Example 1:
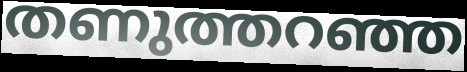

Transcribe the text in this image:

തണുത്തറഞ്ഞ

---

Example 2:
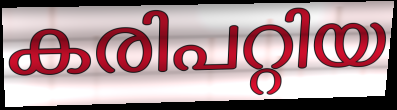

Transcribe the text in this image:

കരിപറ്റിയ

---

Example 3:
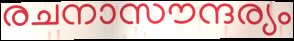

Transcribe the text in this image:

രചനാസൗന്ദര്യം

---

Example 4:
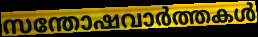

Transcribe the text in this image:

സന്തോഷവാർത്തകൾ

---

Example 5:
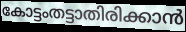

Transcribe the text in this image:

കോട്ടംതട്ടാതിരിക്കാൻ